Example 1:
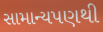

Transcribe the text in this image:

સામાન્યપણથી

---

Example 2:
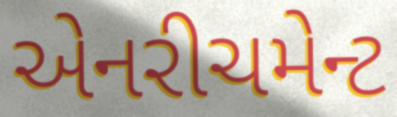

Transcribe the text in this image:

એનરીચમેન્ટ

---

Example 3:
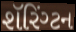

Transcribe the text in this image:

શૅરિંગ્ટન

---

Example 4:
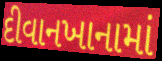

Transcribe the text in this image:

દીવાનખાનામાં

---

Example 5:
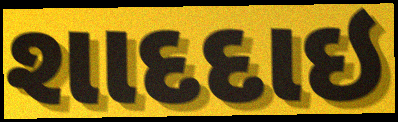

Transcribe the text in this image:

શાદદાઇ